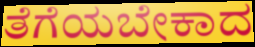
ತೆಗೆಯಬೇಕಾದ